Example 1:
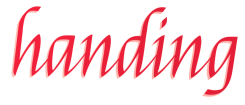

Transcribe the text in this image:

handing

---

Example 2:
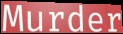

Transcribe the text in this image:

Murder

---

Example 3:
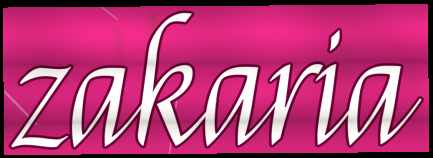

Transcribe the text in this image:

zakaria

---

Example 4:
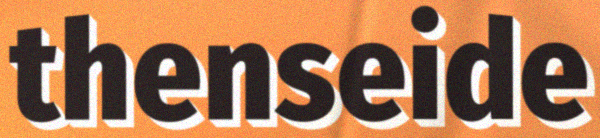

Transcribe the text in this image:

thenseide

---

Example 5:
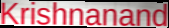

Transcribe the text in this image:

Krishnanand